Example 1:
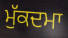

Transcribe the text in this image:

ਮੁੱਕਦਮਾ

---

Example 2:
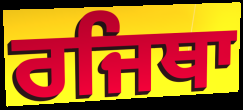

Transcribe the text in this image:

ਰਜਿਥਾ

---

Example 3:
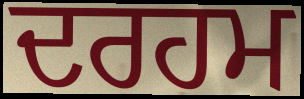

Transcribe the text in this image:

ਦਰਹਮ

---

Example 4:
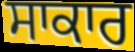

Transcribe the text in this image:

ਸਾਕਾਰ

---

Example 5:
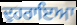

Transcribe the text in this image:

ਦੁਹਰਾਇਆ